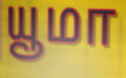
யூமா